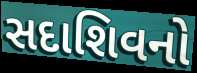
સદાશિવનો